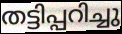
തട്ടിപ്പറിച്ചു